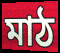
মাঠ